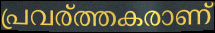
പ്രവര്ത്തകരാണ്